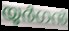
യുർഗൻ